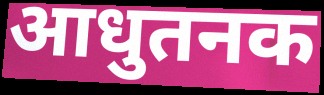
आधुतनक